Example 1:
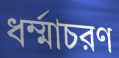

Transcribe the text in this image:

ধর্ম্মাচরণ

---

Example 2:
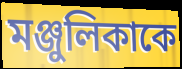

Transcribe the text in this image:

মঞ্জুলিকাকে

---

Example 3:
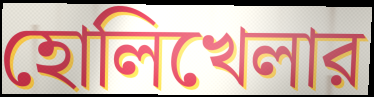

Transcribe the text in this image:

হোলিখেলার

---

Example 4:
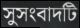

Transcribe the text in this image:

সুসংবাদটি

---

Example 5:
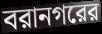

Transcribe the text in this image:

বরানগরের